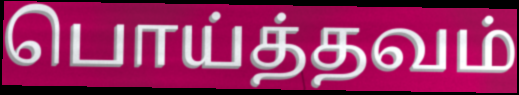
பொய்த்தவம்